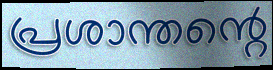
പ്രശാന്തന്റെ